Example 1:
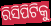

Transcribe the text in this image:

ରିସିପିଟିକୁ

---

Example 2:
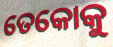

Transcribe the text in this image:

ତେକୋକୁ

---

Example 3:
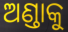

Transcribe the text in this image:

ଅଣ୍ଡାକୁ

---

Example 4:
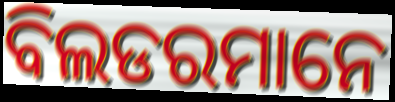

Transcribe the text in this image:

ବିଲଡରମାନେ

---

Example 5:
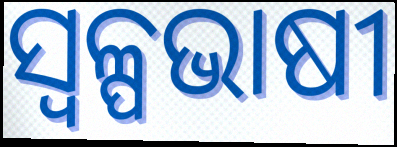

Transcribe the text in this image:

ସ୍ୱଳ୍ପଭାଷୀ